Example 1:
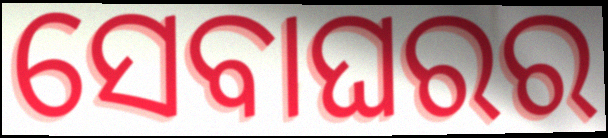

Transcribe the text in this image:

ସେବାଘରର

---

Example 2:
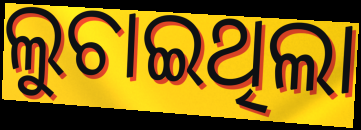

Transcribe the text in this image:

ଲୁଚାଇଥିଲା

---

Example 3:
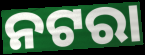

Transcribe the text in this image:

ନଟରା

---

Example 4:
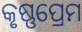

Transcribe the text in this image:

କୃଷ୍ଣପ୍ରେମ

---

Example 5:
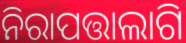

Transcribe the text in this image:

ନିରାପତ୍ତାଲାଗି